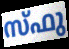
സ്ഫു